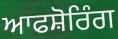
ਆਫਸ਼ੋਰਿੰਗ